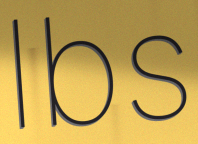
lbs